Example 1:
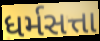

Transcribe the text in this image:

ધર્મસત્તા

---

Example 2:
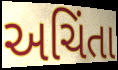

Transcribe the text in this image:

અચિંતા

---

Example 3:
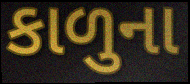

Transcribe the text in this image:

કાળુના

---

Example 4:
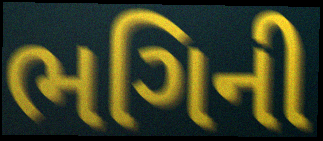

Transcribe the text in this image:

ભગિની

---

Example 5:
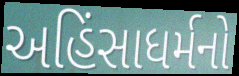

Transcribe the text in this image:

અહિંસાધર્મનો